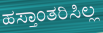
ಹಸ್ತಾಂತರಿಸಿಲ್ಲ